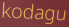
kodagu